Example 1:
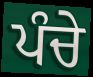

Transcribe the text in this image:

ਪੰਚੇ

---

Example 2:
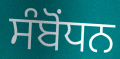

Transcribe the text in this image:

ਸੰਬੋੰਧਨ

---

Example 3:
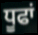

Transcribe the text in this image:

ਧੂਫਾਂ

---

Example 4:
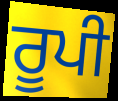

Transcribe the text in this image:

ਰੂਪੀ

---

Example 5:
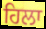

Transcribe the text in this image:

ਹਿਲਾ